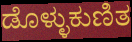
ಡೊಳ್ಳುಕುಣಿತ